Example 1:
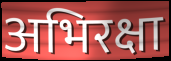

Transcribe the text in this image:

अभिरक्षा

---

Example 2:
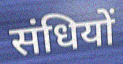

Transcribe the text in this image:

संधियों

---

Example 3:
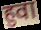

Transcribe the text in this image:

हुवा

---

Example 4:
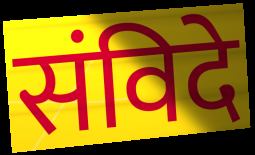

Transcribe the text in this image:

संविदे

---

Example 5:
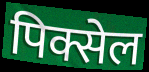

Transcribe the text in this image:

पिक्सेल